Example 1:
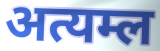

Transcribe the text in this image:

अत्यम्ल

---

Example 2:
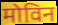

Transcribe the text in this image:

मोविन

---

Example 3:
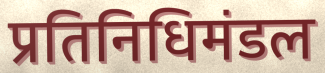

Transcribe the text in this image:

प्रतिनिधिमंडल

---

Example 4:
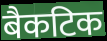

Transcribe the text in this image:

बैकटिक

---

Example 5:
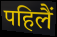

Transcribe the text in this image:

पहिलैं